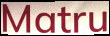
Matru